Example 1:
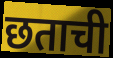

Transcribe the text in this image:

छताची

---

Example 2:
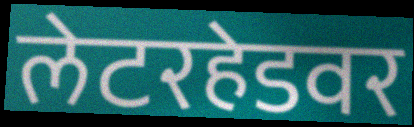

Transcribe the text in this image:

लेटरहेडवर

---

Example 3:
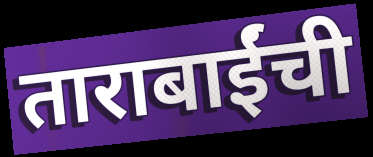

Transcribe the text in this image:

ताराबाईंची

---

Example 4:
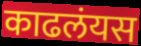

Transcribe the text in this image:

काढलंयस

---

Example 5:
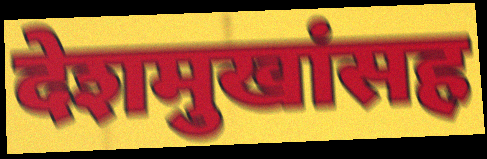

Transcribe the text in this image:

देशमुखांसह